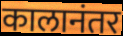
कालानंतर